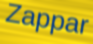
Zappar